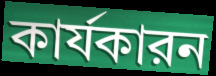
কার্যকারন